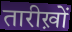
तारीख़ों